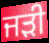
ਜੜੀ